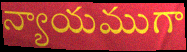
న్యాయముగా